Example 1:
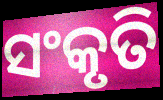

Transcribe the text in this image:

ସଂକୃତି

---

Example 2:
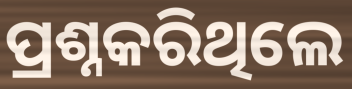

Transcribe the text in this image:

ପ୍ରଶ୍ନକରିଥିଲେ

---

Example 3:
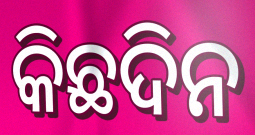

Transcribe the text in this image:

କିଛଦିନ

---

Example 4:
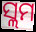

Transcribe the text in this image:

ସ୍ଲମ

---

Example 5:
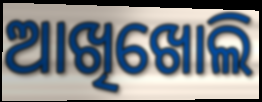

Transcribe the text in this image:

ଆଖିଖୋଲି